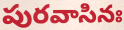
పురవాసినః